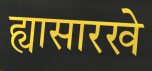
ह्यासारखे